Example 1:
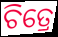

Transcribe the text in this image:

ଚିତ୍ରେ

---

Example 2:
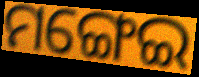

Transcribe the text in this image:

ମଙ୍ଗେଇ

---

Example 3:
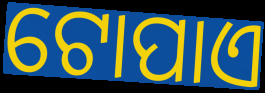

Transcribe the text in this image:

ଟୋପାଏ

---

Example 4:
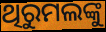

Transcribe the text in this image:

ଥିରୁମଲଙ୍କୁ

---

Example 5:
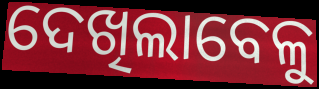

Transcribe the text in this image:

ଦେଖିଲାବେଳୁ